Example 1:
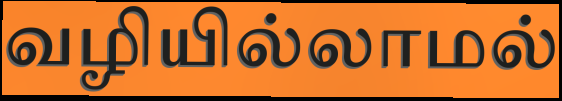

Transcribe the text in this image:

வழியில்லாமல்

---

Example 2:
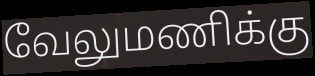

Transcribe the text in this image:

வேலுமணிக்கு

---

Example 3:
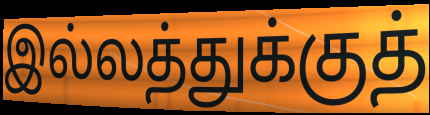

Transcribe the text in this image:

இல்லத்துக்குத்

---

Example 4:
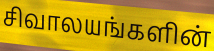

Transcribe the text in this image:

சிவாலயங்களின்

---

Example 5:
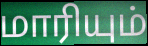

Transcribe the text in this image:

மாரியும்